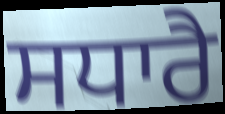
ਸਧਾਰੈ